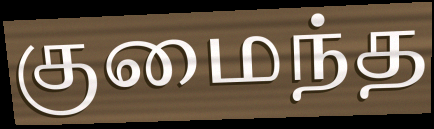
குமைந்த